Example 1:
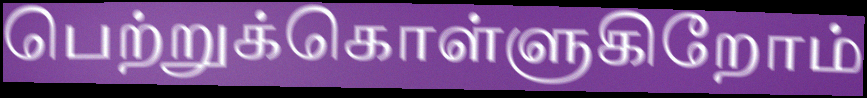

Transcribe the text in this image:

பெற்றுக்கொள்ளுகிறோம்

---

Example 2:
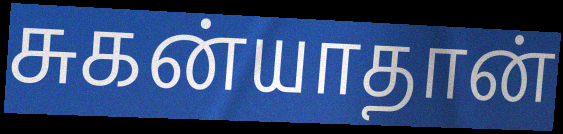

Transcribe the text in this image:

சுகன்யாதான்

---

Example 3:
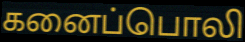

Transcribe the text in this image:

கனைப்பொலி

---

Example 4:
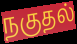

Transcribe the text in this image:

நகுதல்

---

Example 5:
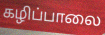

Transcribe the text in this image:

கழிப்பாலை